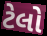
ટેલો